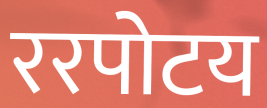
ररपोटय